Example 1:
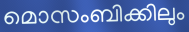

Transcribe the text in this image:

മൊസംബിക്കിലും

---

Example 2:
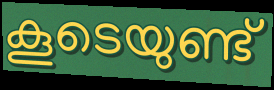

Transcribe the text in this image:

കൂടെയുണ്ട്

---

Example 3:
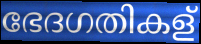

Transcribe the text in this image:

ഭേദഗതികള്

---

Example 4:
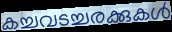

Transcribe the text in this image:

കച്ചവടച്ചരക്കുകൾ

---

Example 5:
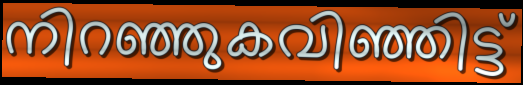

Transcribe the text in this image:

നിറഞ്ഞുകവിഞ്ഞിട്ട്